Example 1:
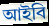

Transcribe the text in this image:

আইবি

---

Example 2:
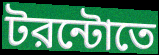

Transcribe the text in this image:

টরন্টোতে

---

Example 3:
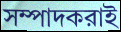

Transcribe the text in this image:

সম্পাদকরাই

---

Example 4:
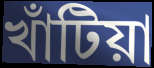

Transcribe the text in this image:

খাঁটিয়া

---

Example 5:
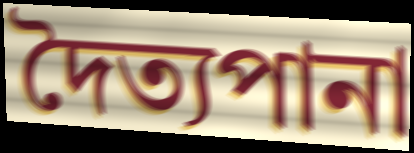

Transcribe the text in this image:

দৈত্যপানা